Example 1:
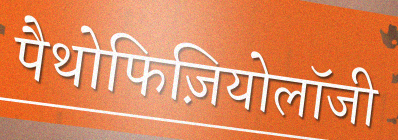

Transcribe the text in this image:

पैथोफिज़ियोलॉजी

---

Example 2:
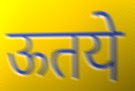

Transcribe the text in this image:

ऊतये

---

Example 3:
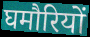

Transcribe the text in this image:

घमौरियों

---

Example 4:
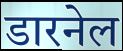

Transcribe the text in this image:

डारनेल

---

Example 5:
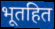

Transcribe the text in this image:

भूतहित